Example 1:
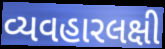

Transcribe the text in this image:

વ્યવહારલક્ષી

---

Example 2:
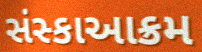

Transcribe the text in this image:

સંસ્કાઆક્રમ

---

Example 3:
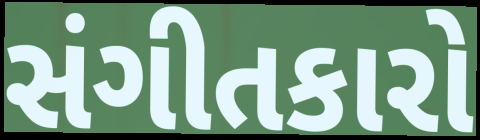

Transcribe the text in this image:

સંગીતકારો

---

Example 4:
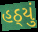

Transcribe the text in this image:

હઠ્યું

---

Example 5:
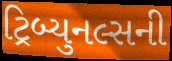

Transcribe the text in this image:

ટ્રિબ્યુનલ્સની